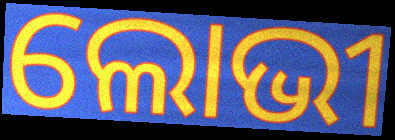
ଲୋଭୀ